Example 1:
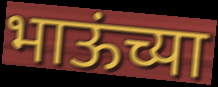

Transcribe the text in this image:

भाऊंच्या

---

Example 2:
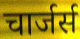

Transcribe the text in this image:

चार्जर्स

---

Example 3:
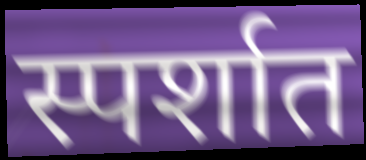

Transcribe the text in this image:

स्पर्शात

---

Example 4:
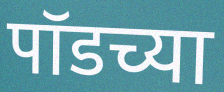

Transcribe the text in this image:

पॉडच्या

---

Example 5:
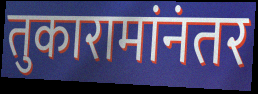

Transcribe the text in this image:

तुकारामांनंतर